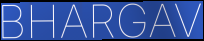
BHARGAV